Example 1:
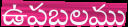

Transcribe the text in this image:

ఉపబలము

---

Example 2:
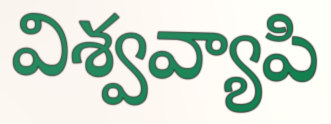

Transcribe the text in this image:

విశ్వవ్యాపి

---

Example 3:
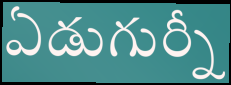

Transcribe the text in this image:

ఏడుగుర్నీ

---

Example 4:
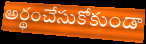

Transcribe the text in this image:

అర్థంచేసుకోకుండా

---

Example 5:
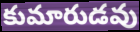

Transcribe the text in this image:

కుమారుడవు